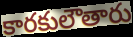
కారకులౌతారు